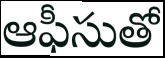
ఆఫీసుతో